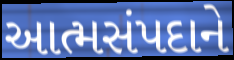
આત્મસંપદાને